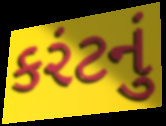
કરંટનું